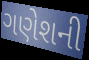
ગણેશની